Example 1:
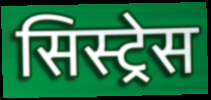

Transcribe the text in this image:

सिस्ट्रेस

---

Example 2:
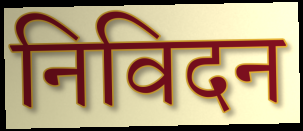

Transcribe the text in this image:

निविदन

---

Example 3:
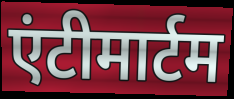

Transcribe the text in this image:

एंटीमार्टम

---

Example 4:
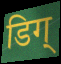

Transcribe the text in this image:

डिग्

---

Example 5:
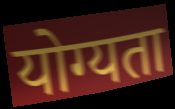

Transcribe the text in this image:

योग्यता